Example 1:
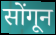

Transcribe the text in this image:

सोंगून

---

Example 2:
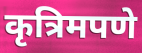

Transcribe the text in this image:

कृत्रिमपणे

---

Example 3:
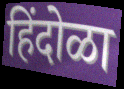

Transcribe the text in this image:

हिंदोळा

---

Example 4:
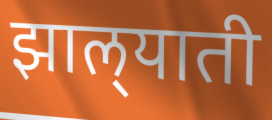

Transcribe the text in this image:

झाल्याती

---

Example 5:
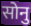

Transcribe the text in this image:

सोनु